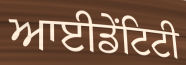
ਆਈਡੇਂਟਿਟੀ